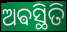
ଅଵସ୍ଥିତି